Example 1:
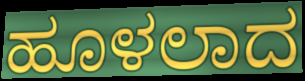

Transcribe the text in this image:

ಹೂಳಲಾದ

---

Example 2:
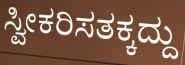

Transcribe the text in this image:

ಸ್ವೀಕರಿಸತಕ್ಕದ್ದು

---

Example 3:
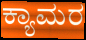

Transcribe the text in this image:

ಕ್ಯಾಮರ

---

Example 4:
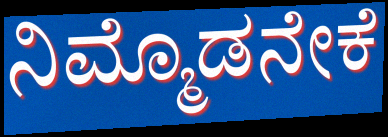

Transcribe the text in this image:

ನಿಮ್ಮೊಡನೇಕೆ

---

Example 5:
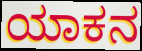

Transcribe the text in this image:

ಯಾಕನ